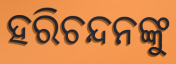
ହରିଚନ୍ଦନଙ୍କୁ